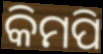
କିମପି